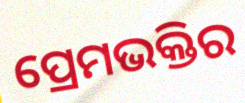
ପ୍ରେମଭକ୍ତିର